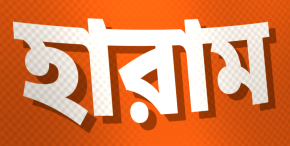
হারাম